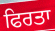
ਫਿਰਤਾ